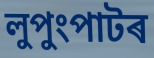
লুপুংপাটৰ